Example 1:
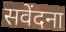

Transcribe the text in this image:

सवेंदना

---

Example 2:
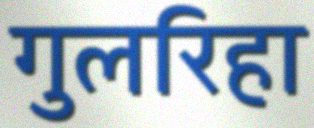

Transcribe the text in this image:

गुलरिहा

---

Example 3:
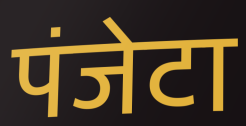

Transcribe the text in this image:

पंजेटा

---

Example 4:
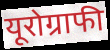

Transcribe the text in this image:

यूरोग्राफी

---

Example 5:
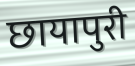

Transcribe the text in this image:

छायापुरी